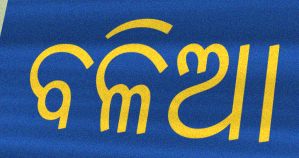
ବଳିଆ